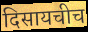
दिसायचीच